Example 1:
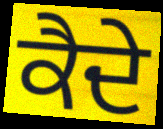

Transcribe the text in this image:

ਕੈਦੇ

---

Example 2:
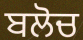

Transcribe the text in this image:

ਬਲੋਚ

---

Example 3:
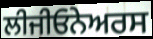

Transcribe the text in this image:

ਲੀਜੀਓਨੇਅਰਸ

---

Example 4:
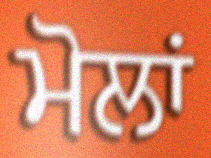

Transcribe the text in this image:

ਮੋਲਾਂ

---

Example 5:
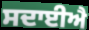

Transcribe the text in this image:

ਸਦਾਈਐ